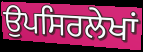
ਉਪਸਿਰਲੇਖਾਂ